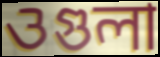
ওগুলা